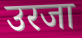
उरजा